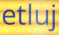
etluj